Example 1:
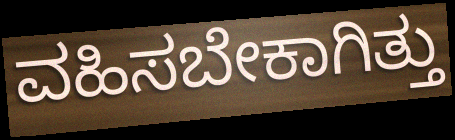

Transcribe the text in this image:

ವಹಿಸಬೇಕಾಗಿತ್ತು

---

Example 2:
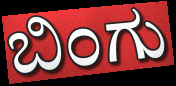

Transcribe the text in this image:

ಬಿಂಗು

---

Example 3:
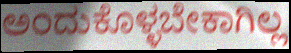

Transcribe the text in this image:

ಅಂದುಕೊಳ್ಳಬೇಕಾಗಿಲ್ಲ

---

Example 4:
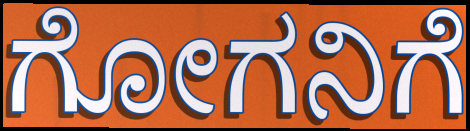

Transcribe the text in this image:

ಗೋಗನಿಗೆ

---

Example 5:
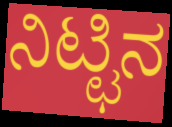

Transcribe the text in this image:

ನಿಟ್ಟಿನ